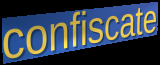
confiscate